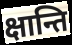
क्षान्ति